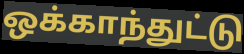
ஒக்காந்துட்டு